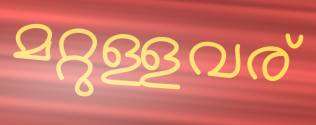
മറ്റുള്ളവര്